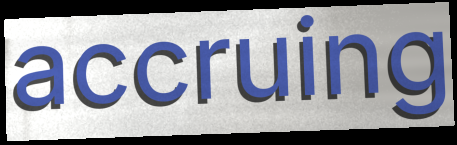
accruing